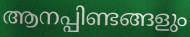
ആനപ്പിണ്ടങ്ങളും